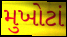
મુખોટાં